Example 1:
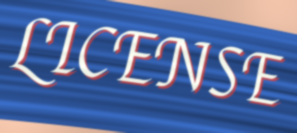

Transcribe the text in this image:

LICENSE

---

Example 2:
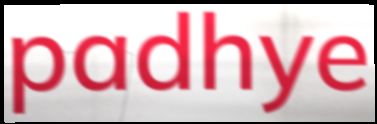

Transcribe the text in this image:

padhye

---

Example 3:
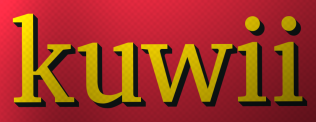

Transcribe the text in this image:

kuwii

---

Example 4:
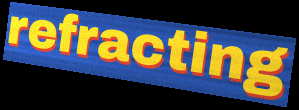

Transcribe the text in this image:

refracting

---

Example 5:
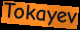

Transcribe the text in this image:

Tokayev